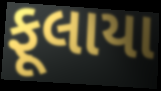
ફૂલાયા